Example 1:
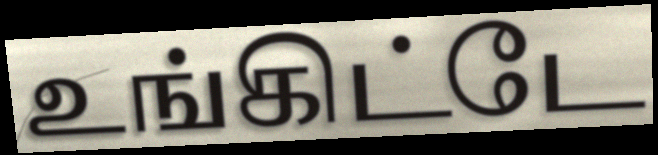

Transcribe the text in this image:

உங்கிட்டே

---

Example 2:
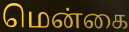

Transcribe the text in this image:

மென்கை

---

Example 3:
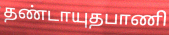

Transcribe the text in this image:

தண்டாயுதபாணி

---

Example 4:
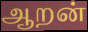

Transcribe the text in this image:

ஆறன்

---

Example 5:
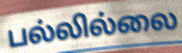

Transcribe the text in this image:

பல்லில்லை